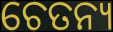
ଚେତନ୍ୟ